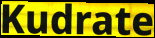
Kudrate